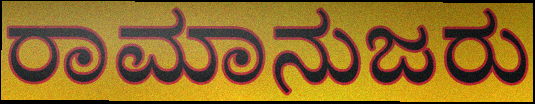
ರಾಮಾನುಜರು